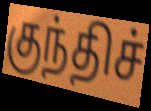
குந்திச்